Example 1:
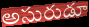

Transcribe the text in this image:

అసురుడూ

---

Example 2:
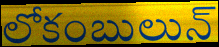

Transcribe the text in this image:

లోకంబులున్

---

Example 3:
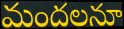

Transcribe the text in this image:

మందలనూ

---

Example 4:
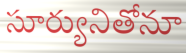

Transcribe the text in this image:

సూర్యునితోనూ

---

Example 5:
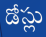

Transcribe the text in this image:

డోస్లు